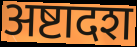
अष्टादश